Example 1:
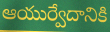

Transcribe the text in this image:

ఆయుర్వేదానికి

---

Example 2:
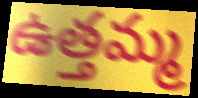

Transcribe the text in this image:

ఉత్తమ్మ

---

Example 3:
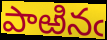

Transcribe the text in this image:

పాఱినఁ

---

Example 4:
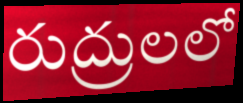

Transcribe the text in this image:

రుద్రులలో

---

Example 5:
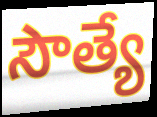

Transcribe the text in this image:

సౌత్యే